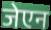
जेएन